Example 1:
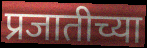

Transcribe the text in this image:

प्रजातीच्या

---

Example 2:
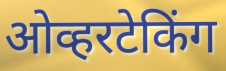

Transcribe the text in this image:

ओव्हरटेकिंग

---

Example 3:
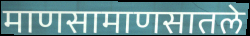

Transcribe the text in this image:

माणसामाणसातले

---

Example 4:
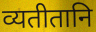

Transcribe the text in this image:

व्यतीतानि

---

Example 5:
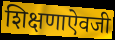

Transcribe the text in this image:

शिक्षणाऐवजी